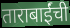
ताराबाईंची